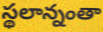
స్థలాన్నంతా